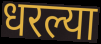
धरल्या